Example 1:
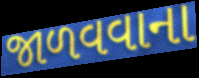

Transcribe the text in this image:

જાળવવાના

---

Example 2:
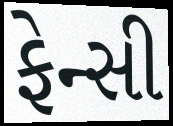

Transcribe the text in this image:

ફેન્સી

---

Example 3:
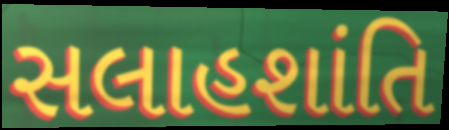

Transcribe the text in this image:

સલાહશાંતિ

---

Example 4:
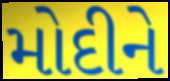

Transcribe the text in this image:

મોદીને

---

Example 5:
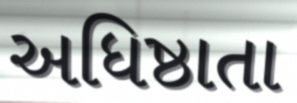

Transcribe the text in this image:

અધિષ્ઠાતા